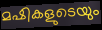
മഷികളുടെയും